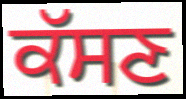
ਕੱਸਣ